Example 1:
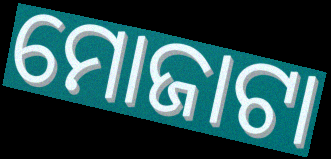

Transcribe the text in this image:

ମୋଜାଟା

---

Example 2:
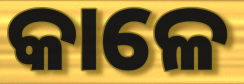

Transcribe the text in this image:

କାଳେ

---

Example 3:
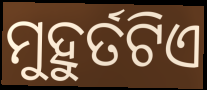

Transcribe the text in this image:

ମୁହୁର୍ତଟିଏ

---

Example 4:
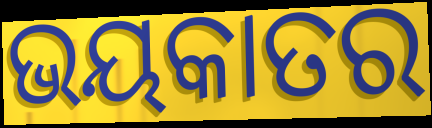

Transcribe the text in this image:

ଭୟକାତର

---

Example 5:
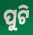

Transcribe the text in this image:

ପୁଟି